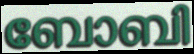
ബോബി